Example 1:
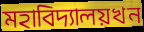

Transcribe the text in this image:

মহাবিদ্যালয়খন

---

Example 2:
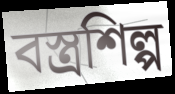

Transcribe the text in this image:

বস্ত্ৰশিল্প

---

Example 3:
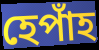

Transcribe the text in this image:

হেপাঁহ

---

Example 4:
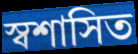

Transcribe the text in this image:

স্বশাসিত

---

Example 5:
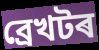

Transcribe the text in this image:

ব্ৰেখটৰ